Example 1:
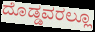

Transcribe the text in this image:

ದೊಡ್ಡವರಲ್ಲೂ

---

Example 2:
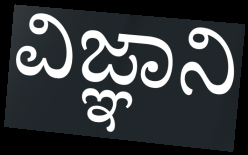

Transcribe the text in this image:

ವಿಜ್ಞಾನಿ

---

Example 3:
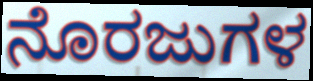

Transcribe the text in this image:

ನೊರಜುಗಳ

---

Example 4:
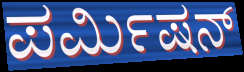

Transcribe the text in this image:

ಪರ್ಮಿಷನ್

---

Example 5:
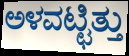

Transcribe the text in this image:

ಅಳವಟ್ಟಿತ್ತು